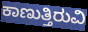
ಕಾಣುತ್ತಿರುವಿ